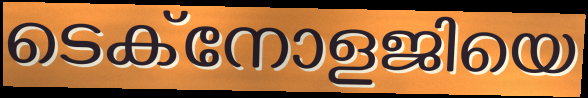
ടെക്‌നോളജിയെ